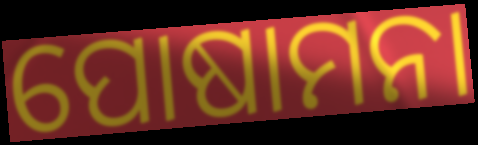
ପୋଷାମନା